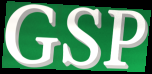
GSP